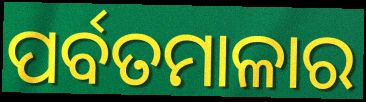
ପର୍ବତମାଳାର